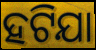
ହଟିଯା